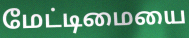
மேட்டிமையை